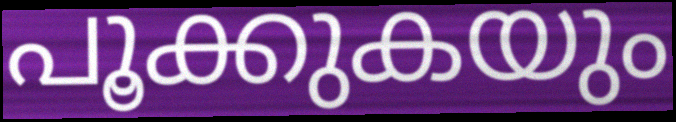
പൂക്കുകയും